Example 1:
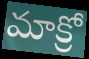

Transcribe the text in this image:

మాక్రో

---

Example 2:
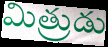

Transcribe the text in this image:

మిత్రుడు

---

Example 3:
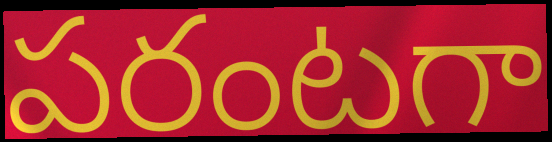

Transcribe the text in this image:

పరంటగా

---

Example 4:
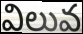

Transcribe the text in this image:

విలువ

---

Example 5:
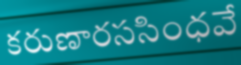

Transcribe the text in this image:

కరుణారససింధవే